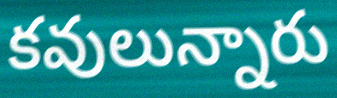
కవులున్నారు